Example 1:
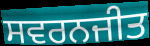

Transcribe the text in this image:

ਸਵਰਨਜੀਤ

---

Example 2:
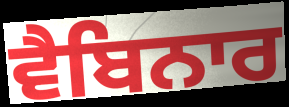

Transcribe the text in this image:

ਵੈਬਿਨਾਰ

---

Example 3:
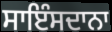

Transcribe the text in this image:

ਸਾਇੰਸਦਾਨਾ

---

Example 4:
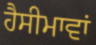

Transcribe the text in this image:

ਹੈਸੀਮਾਵਾਂ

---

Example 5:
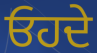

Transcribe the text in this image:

ਓਹਦੇ